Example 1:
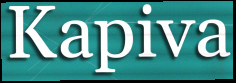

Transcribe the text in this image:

Kapiva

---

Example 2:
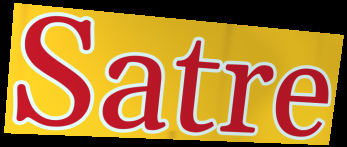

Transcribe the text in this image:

Satre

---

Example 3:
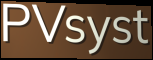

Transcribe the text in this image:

PVsyst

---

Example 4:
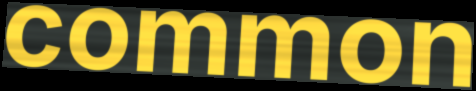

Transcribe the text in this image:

common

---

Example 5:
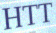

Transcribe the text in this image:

HTT